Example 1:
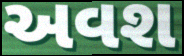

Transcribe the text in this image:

અવશ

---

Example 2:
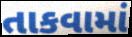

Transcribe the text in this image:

તાકવામાં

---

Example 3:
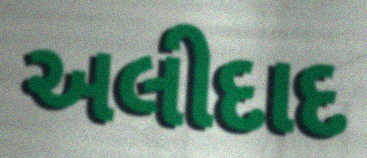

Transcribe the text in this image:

અલીદાદ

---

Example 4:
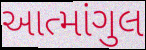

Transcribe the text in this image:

આત્માંગુલ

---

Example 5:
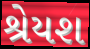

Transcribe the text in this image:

શ્રેયશ